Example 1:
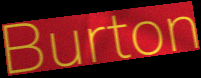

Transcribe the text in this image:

Burton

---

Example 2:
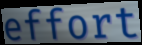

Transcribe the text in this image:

effort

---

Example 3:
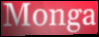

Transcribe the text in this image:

Monga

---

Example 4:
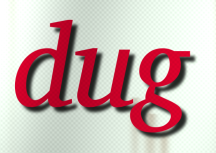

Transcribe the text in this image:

dug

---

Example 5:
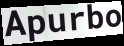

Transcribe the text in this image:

Apurbo